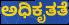
ಅಧಿಕೃತತೆ